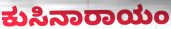
ಕುಸಿನಾರಾಯಂ